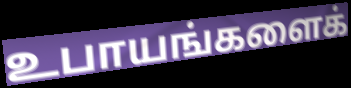
உபாயங்களைக்